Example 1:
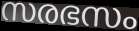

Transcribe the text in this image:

സരഭസം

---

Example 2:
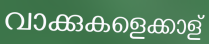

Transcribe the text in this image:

വാക്കുകളെക്കാള്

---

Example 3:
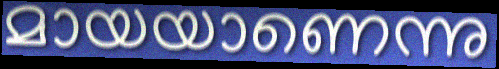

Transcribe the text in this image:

മായയാണെന്നു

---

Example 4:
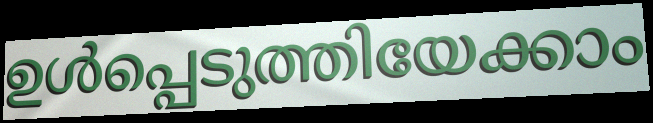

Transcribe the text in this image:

ഉൾപ്പെടുത്തിയേക്കാം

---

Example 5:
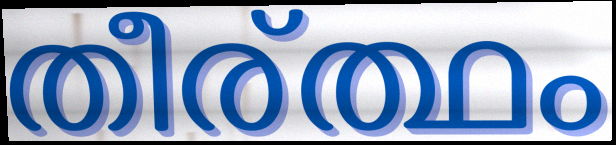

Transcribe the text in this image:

തീര്ത്ഥം